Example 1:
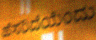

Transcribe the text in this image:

ಹೆಸರಿದೆಯೆಂದು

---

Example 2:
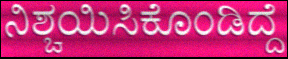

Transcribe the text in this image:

ನಿಶ್ಚಯಿಸಿಕೊಂಡಿದ್ದೆ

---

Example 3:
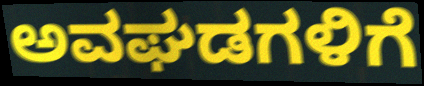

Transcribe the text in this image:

ಅವಘಡಗಳಿಗೆ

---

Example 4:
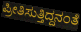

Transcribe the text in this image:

ಪ್ರೀತಿಸುತ್ತಿದ್ದನಂತೆ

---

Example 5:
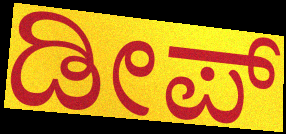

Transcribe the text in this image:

ಡೀಪ್